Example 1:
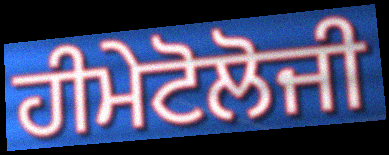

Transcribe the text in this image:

ਹੀਮੇਟੋਲੋਜੀ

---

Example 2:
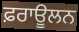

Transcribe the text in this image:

ਫ਼ਰਾਊਲਨ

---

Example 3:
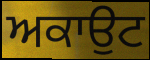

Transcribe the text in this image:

ਅਕਾਉਟ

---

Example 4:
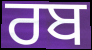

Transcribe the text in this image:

ਰਬ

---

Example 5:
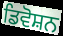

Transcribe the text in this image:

ਡਿਵੋਸ਼ਨ